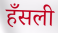
हँसली